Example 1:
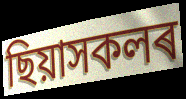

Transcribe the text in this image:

ছিয়াসকলৰ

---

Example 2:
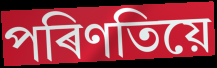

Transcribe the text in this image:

পৰিণতিয়ে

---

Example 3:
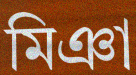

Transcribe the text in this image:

মিঞা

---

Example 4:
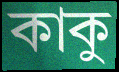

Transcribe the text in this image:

কাকু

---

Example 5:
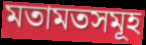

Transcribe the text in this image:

মতামতসমূহ